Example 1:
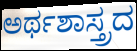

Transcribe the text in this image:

ಅರ್ಥಶಾಸ್ತ್ರದ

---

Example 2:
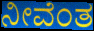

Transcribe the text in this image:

ನೀವೆಂತ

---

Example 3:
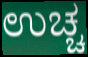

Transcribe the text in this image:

ಉಚ್ಚ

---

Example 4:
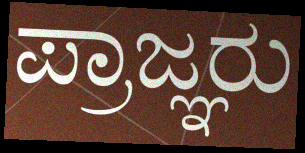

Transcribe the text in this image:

ಪ್ರಾಜ್ಞರು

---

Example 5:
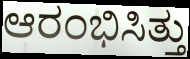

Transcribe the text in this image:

ಆರಂಭಿಸಿತ್ತು